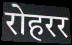
रोहरर